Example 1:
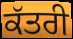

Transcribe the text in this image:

ਕੱਤਰੀ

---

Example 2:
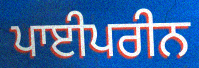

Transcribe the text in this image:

ਪਾਈਪਰੀਨ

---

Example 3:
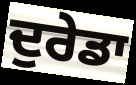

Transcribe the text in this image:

ਦੁਰੇਡਾ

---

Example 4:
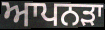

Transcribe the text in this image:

ਆਪਨੜਾ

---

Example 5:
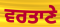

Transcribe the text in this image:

ਵਰਤਾਣੇ